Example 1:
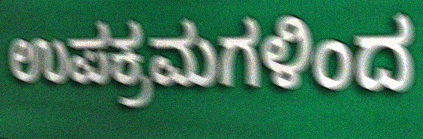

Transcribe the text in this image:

ಉಪಕ್ರಮಗಳಿಂದ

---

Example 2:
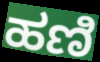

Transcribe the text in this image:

ಹಣಿ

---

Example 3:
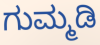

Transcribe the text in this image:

ಗುಮ್ಮಡಿ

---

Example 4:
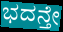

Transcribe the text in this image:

ಭದನ್ತೇ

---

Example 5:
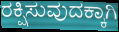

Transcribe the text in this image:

ರಕ್ಷಿಸುವುದಕ್ಕಾಗಿ